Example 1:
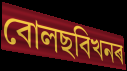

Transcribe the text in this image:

বোলছবিখনৰ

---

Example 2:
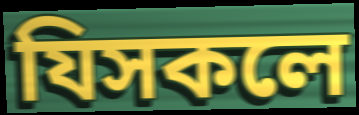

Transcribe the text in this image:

যিসকলে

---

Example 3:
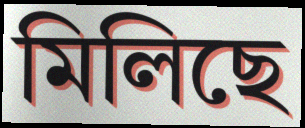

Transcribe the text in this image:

মিলিছে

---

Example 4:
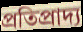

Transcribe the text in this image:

প্ৰতিপ্ৰাদ্য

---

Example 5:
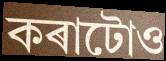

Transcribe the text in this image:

কৰাটোও